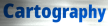
Cartography